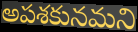
అపశకునమని